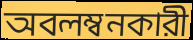
অবলম্বনকারী